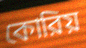
কোরিয়